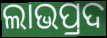
ଲାଭପ୍ରଦ